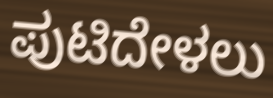
ಪುಟಿದೇಳಲು